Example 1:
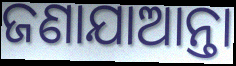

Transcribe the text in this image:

ଜଣାଯାଆନ୍ତା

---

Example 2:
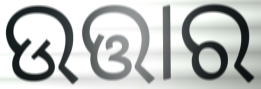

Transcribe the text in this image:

ଉତ୍ତାର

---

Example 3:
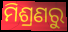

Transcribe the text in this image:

ମିଶ୍ରଣରୁ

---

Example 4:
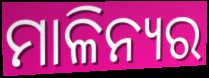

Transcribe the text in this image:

ମାଳିନ୍ୟର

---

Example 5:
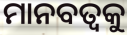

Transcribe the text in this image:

ମାନବତ୍ବକୁ